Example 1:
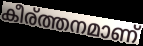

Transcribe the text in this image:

കീര്ത്തനമാണ്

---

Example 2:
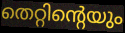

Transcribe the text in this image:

തെറ്റിന്റെയും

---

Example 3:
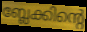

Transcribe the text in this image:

ബ്ലേക്കിന്റെ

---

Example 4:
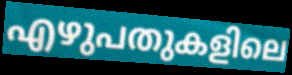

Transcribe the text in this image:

എഴുപതുകളിലെ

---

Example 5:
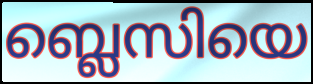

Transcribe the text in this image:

ബ്ലെസിയെ